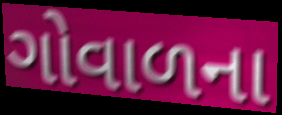
ગોવાળના